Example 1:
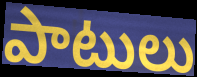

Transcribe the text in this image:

పాటులు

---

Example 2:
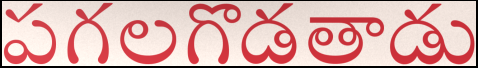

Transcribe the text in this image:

పగలగొడతాడు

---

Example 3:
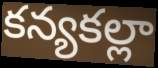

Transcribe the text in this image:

కన్యకల్లా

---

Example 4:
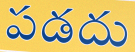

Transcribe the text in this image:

పడదు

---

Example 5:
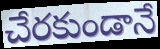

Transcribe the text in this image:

చేరకుండానే